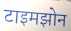
टाइमझोन